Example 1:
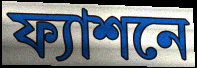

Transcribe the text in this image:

ফ্যাশনে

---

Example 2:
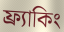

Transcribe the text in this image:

ফ্র্যাকিং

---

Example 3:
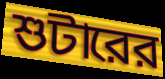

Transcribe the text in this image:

শুটারের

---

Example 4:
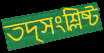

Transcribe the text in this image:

তদ্‌সংশ্লিষ্ট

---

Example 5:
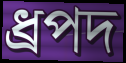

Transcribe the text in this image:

ধ্রপদ